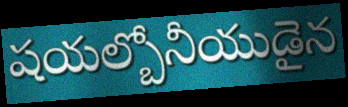
షయల్బోనీయుడైన